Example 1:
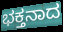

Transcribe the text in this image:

ಭಕ್ತನಾದ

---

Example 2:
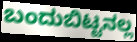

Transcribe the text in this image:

ಬಂದುಬಿಟ್ಟನಲ್ಲ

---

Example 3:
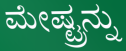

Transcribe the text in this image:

ಮೇಷ್ಟ್ರನ್ನು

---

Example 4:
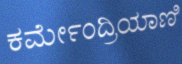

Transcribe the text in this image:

ಕರ್ಮೇಂದ್ರಿಯಾಣಿ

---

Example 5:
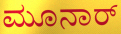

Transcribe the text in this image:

ಮೂನಾರ್